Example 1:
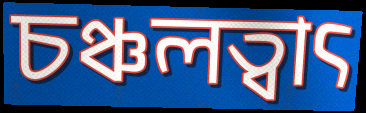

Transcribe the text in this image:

চঞ্চলত্বাৎ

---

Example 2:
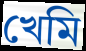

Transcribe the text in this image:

খেমি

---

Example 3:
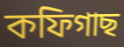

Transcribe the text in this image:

কফিগাছ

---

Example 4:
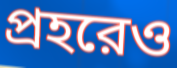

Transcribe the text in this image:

প্রহরেও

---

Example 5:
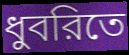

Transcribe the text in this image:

ধুবরিতে